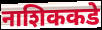
नाशिककडे